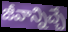
జీవాన్నిచ్చే